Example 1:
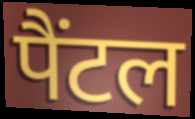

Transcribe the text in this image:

पैंटल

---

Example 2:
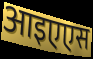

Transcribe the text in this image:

आइएएस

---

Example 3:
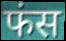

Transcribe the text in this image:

फंस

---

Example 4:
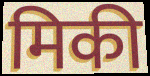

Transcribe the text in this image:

मिकी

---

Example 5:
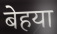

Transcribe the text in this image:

बेहया